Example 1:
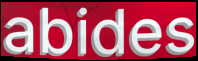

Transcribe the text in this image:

abides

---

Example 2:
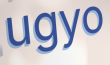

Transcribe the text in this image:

ugyo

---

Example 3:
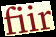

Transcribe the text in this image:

fiir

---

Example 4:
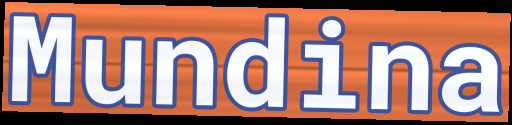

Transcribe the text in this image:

Mundina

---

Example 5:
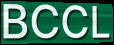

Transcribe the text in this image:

BCCL